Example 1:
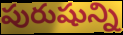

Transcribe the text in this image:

పురుషున్ని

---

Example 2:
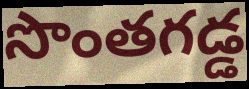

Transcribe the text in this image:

సొంతగడ్డ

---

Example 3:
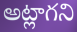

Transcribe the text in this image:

అట్లాగని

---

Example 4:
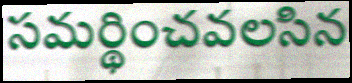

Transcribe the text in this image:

సమర్థించవలసిన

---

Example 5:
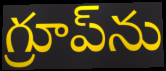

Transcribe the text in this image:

గ్రూప్‌ను